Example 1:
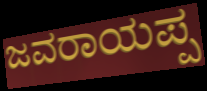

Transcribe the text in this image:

ಜವರಾಯಪ್ಪ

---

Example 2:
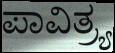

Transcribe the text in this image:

ಪಾವಿತ್ರ್ಯ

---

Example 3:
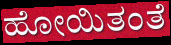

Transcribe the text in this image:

ಹೋಯಿತಂತೆ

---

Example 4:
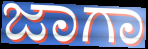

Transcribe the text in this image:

ಜಾಗಾ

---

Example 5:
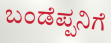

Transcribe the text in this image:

ಬಂಡೆಪ್ಪನಿಗೆ